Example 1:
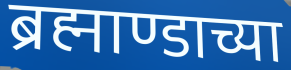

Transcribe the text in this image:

ब्रह्माण्डाच्या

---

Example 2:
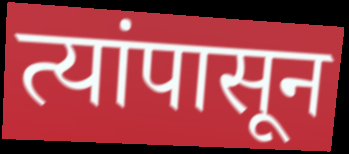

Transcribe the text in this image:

त्यांपासून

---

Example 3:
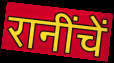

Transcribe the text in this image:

रानींचें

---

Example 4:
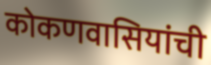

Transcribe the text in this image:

कोकणवासियांची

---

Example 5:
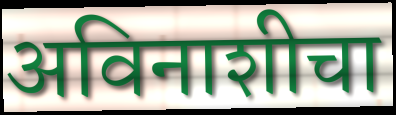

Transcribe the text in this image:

अविनाशीचा